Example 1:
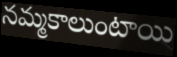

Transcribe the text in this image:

నమ్మకాలుంటాయి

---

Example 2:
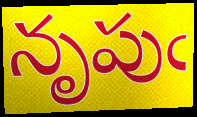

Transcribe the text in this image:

నృపుఁ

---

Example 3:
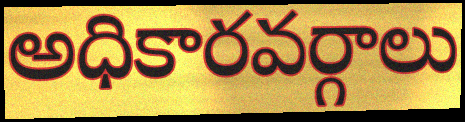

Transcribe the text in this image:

అధికారవర్గాలు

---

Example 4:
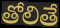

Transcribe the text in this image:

తోలితే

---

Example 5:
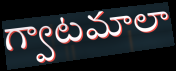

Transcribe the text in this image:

గ్వాటమాలా